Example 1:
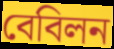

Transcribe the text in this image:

বেবিলন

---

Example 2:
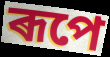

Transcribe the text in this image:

ৰূপে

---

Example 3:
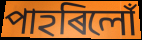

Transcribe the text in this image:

পাহৰিলোঁ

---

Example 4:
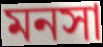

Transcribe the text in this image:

মনসা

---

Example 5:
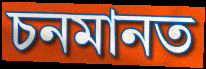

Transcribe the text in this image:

চনমানত